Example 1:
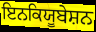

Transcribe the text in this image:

ਇਨਕਿਯੂਬੇਸ਼ਨ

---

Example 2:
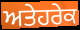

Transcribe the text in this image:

ਅਤੇਹਰੇਕ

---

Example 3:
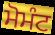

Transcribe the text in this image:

ਮੋਮੰਟ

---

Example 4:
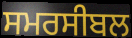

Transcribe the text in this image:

ਸਮਰਸੀਬਲ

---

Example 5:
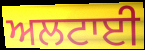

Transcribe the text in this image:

ਅਲਟਾਈ